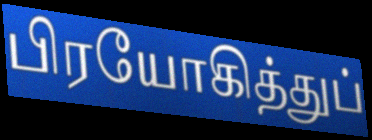
பிரயோகித்துப்